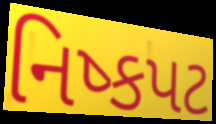
નિષ્કપટ